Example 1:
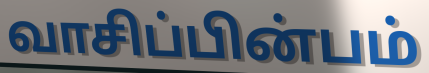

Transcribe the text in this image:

வாசிப்பின்பம்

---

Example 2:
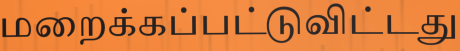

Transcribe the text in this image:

மறைக்கப்பட்டுவிட்டது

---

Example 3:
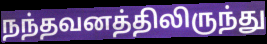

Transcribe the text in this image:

நந்தவனத்திலிருந்து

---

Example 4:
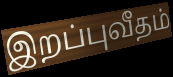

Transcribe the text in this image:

இறப்புவீதம்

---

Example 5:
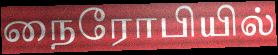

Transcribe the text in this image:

நைரோபியில்